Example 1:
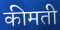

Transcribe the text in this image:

कीमती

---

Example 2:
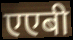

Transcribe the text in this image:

एएबी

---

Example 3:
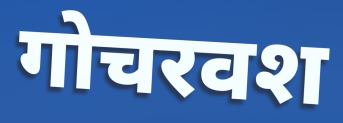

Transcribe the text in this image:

गोचरवश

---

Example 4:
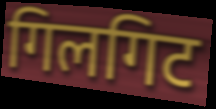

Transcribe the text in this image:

गिलगिट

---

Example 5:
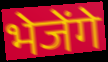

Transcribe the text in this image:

भेजेंगे